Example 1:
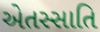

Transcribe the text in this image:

એતસ્સાતિ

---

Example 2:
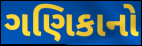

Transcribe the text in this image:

ગણિકાનો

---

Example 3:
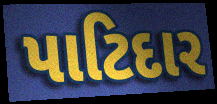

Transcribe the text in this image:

પાટિદાર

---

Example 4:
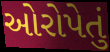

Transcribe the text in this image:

ઓરોપેતું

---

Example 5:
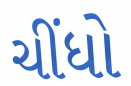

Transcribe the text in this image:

ચીંધો